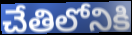
చేతిలోనికి